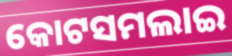
କୋଟସମଲାଇ